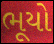
ભૂયો